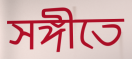
সঙ্গীতে